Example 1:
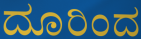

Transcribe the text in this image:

ದೂರಿಂದ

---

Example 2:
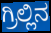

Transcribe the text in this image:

ಗ್ರಿಲ್ಲಿನ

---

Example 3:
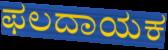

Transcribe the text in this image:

ಫಲದಾಯಕ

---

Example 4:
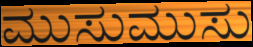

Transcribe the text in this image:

ಮುಸುಮುಸು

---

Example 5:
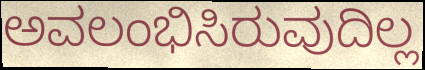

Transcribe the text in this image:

ಅವಲಂಭಿಸಿರುವುದಿಲ್ಲ